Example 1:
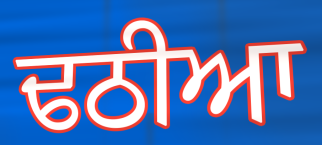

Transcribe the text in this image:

ਢਠੀਆ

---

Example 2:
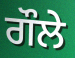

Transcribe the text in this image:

ਗੌਲੇ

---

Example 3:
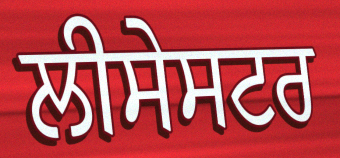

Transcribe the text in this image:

ਲੀਸੇਸਟਰ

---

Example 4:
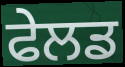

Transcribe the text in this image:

ਫੇਲਡ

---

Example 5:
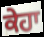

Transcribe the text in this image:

ਕੇਹਾ